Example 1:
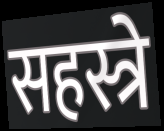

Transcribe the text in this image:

सहस्त्रे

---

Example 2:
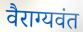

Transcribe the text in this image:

वैराग्यवंत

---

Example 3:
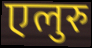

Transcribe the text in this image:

एलुरु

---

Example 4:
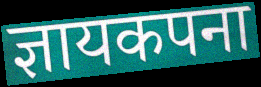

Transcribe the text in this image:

ज्ञायकपना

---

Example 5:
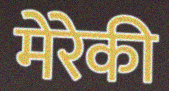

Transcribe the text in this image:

मेरेकी